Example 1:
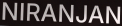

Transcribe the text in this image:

NIRANJAN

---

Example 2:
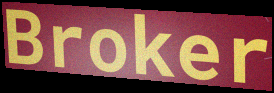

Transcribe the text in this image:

Broker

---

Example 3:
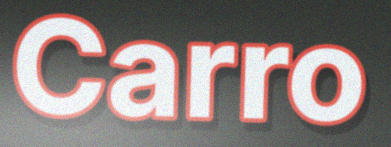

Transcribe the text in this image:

Carro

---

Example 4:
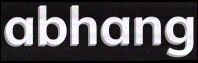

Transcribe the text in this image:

abhang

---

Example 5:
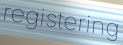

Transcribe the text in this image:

registering